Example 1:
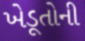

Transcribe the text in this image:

ખેડૂતોની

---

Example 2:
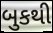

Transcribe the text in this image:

બુકથી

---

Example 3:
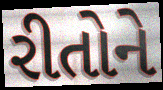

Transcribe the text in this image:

રીતોને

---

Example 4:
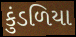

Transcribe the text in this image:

કુંડળિયા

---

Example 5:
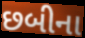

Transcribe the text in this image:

છબીના